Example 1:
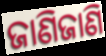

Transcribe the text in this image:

ଜାଣିଜାଣି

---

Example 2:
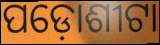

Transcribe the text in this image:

ପଡ଼ୋଶୀଟା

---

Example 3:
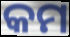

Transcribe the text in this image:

କମ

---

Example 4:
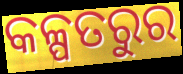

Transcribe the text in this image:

କଳ୍ପତରୁର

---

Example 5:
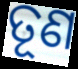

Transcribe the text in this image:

ତୂଣ